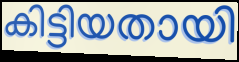
കിട്ടിയതായി